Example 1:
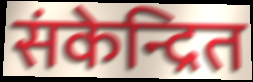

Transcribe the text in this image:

संकेन्द्रित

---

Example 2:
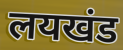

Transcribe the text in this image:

लयखंड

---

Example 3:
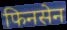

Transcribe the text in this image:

फिनसेन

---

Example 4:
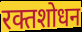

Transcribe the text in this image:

रक्तशोधन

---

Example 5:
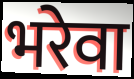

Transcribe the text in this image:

भरेवा